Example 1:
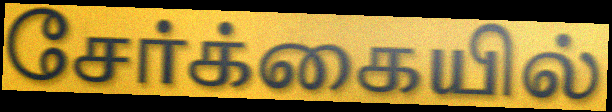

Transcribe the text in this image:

சேர்க்கையில்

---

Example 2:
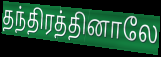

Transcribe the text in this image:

தந்திரத்தினாலே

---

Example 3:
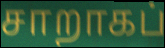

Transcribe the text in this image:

சாறாகப்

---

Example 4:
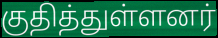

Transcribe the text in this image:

குதித்துள்ளனர்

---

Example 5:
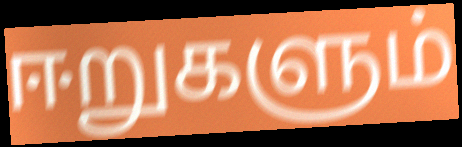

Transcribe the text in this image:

ஈறுகளும்